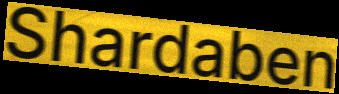
Shardaben